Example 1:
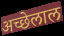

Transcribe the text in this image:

अच्छेलाल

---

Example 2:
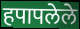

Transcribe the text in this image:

हपापलेले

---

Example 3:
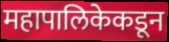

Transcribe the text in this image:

महापालिकेकडून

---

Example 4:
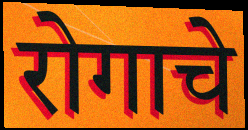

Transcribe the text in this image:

रोगाचे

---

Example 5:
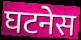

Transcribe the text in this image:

घटनेस